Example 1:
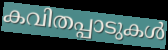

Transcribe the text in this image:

കവിതപ്പാടുകൾ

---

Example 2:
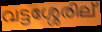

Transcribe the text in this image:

വട്ടശ്ശേരില്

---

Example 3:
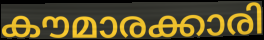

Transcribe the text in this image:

കൗമാരക്കാരി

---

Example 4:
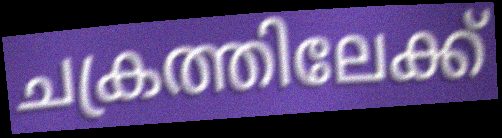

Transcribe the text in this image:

ചക്രത്തിലേക്ക്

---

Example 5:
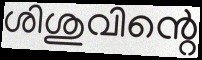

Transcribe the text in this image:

ശിശുവിന്റെ